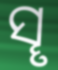
ସୄ